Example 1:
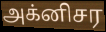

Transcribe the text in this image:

அக்னிசர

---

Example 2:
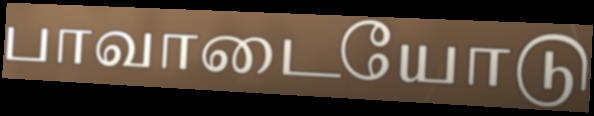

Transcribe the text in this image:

பாவாடையோடு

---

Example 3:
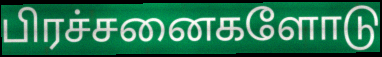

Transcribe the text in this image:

பிரச்சனைகளோடு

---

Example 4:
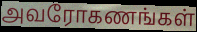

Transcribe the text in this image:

அவரோகணங்கள்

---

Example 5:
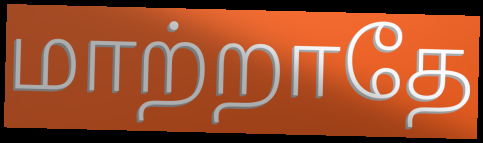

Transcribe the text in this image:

மாற்றாதே